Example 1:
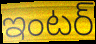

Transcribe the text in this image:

ఇంటర్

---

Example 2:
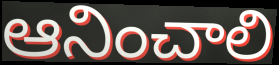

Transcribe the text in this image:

ఆనించాలి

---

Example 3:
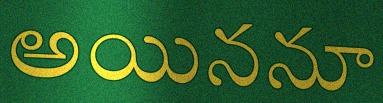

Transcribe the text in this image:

అయిననూ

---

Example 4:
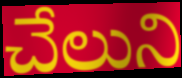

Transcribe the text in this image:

చేలుని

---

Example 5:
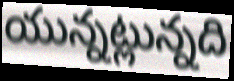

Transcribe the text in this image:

యున్నట్లున్నది